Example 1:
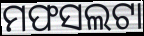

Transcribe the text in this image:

ମଫସଲଟା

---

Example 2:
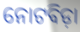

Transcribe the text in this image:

ନୋଟବିଡ଼ା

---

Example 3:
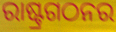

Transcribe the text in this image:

ରାଷ୍ଟ୍ରଗଠନର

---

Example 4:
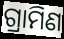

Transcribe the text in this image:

ଗ୍ରାମିଣ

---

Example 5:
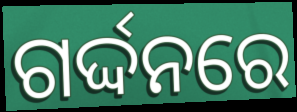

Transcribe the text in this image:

ଗର୍ଦ୍ଦନରେ